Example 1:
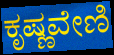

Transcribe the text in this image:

ಕೃಷ್ಣವೇಣಿ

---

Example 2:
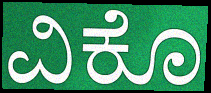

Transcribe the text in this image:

ವಿಕೊ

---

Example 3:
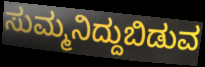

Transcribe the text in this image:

ಸುಮ್ಮನಿದ್ದುಬಿಡುವ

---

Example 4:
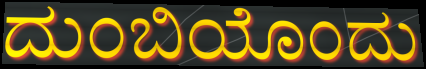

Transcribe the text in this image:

ದುಂಬಿಯೊಂದು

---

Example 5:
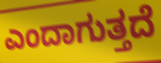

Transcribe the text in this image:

ಎಂದಾಗುತ್ತದೆ